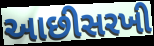
આછીસરખી